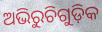
ଅଭିରୁଚିଗୁଡ଼ିକ